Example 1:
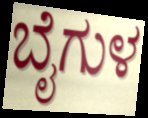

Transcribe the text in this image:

ಬೈಗುಳ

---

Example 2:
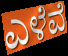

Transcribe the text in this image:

ಎಳೆವೆ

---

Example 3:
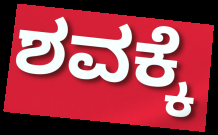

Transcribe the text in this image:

ಶವಕ್ಕೆ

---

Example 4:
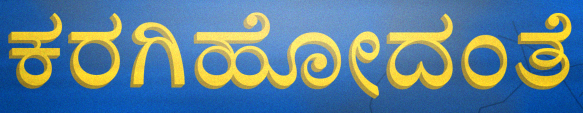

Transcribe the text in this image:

ಕರಗಿಹೋದಂತೆ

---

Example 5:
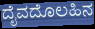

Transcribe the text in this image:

ದೈವದೊಲಹಿನ